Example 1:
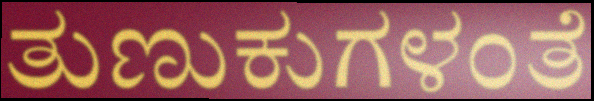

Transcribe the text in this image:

ತುಣುಕುಗಳಂತೆ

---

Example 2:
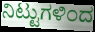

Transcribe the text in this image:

ನಿಟ್ಟುಗಳಿಂದ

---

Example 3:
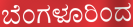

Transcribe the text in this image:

ಬೆಂಗಳೂರಿಂದ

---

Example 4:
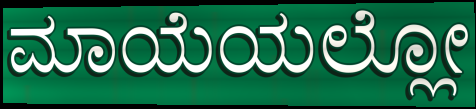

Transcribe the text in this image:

ಮಾಯೆಯಲ್ಲೋ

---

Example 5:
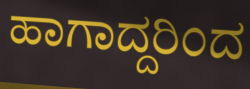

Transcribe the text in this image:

ಹಾಗಾದ್ದರಿಂದ